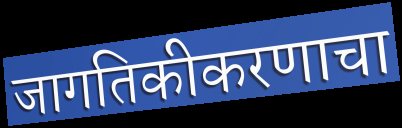
जागतिकीकरणाचा